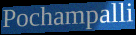
Pochampalli